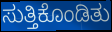
ಸುತ್ತಿಕೊಂಡಿತು